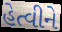
હેત્વીને